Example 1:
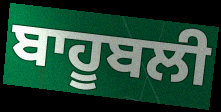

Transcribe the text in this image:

ਬਾਹੂਬਲੀ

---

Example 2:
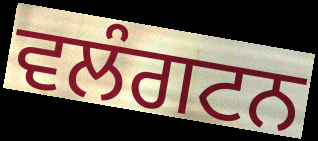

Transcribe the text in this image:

ਵਲੰਗਟਨ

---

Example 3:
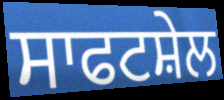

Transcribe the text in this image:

ਸਾਫਟਸ਼ੇਲ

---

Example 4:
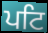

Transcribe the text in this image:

ਪਟਿ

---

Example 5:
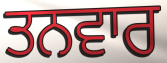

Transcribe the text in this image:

ਤਨਵਾਰ